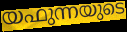
യഫുന്നയുടെ